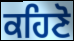
ਕਹਿਣੋ